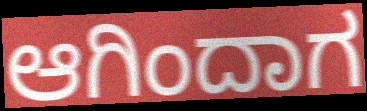
ಆಗಿಂದಾಗ